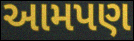
આમપણ